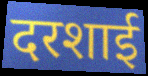
दरशाई